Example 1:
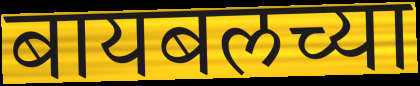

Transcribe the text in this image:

बायबलच्या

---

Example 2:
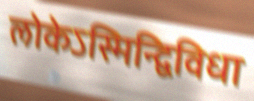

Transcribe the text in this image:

लोकेऽस्मिन्द्विविधा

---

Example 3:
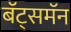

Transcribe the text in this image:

बॅट्समॅन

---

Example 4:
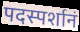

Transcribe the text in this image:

पदस्पर्शानं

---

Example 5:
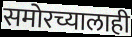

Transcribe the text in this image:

समोरच्यालाही